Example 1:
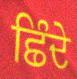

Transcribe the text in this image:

ਛਿੰਦੇ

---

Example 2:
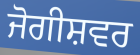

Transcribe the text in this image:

ਜੋਗੀਸ਼ਵਰ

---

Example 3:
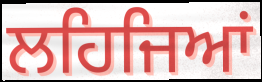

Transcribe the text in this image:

ਲਹਿਜਿਆਂ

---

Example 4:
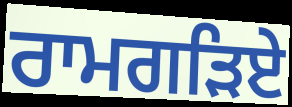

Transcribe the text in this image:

ਰਾਮਗੜਿਏ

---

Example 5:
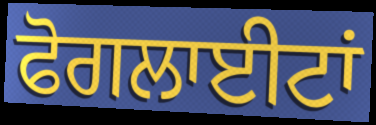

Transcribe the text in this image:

ਫੋਗਲਾਈਟਾਂ